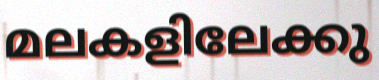
മലകളിലേക്കു